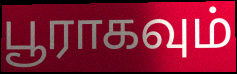
பூராகவும்